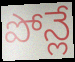
పోన్లే